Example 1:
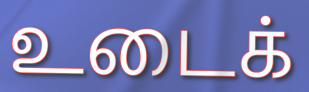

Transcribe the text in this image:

உடைக்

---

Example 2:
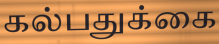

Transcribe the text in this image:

கல்பதுக்கை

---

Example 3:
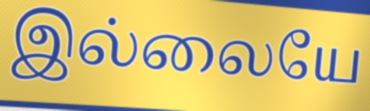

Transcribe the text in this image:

இல்லையே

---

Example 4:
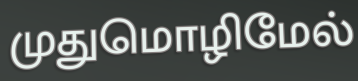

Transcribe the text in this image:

முதுமொழிமேல்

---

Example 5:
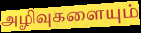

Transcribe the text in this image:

அழிவுகளையும்